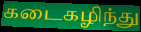
கடைகழிந்து